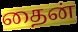
தைன்